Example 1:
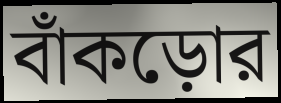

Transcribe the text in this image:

বাঁকড়োর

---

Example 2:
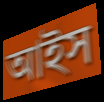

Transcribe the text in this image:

আইস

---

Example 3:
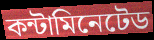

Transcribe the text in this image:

কন্টামিনেটেড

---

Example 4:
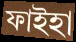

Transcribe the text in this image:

ফাইহা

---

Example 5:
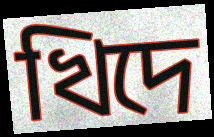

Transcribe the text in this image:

খিদে